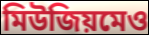
মিউজিয়মেও